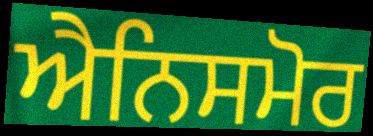
ਐਨਿਸਮੋਰ